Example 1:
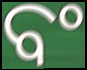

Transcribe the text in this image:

ବଂ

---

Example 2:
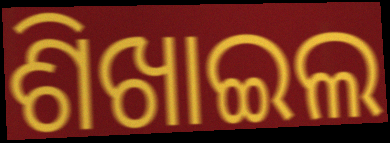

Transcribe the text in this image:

ଶିଖାଇଲ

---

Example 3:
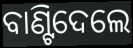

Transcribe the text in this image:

ବାଣ୍ଟିଦେଲେ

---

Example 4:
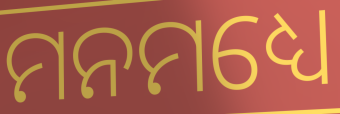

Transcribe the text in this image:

ମନମଧ୍ୟେ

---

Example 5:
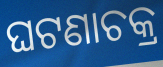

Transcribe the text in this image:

ଘଟଣାଚକ୍ର